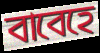
বাবেহে